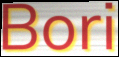
Bori